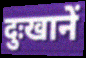
दुःखानें